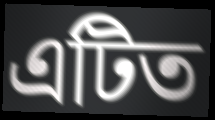
এটিত